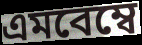
এমবেম্বে